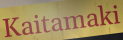
Kaitamaki